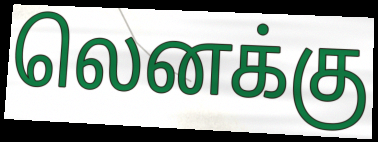
லெனக்கு